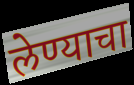
लेण्याचा